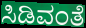
ಸಿಡಿವಂತೆ